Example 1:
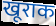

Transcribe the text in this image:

खूराक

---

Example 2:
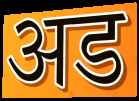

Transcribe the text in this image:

अड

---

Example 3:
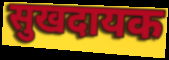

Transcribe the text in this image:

सुखदायक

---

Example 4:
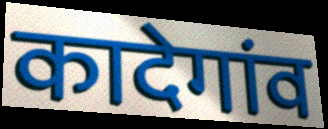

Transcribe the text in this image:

कादेगांव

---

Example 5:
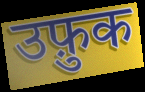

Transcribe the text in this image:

उफ़ुक